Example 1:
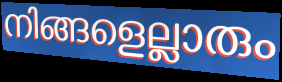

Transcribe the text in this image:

നിങ്ങളെല്ലാരും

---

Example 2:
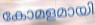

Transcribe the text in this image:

കോമളമായി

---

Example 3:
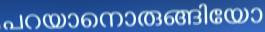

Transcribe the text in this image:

പറയാനൊരുങ്ങിയോ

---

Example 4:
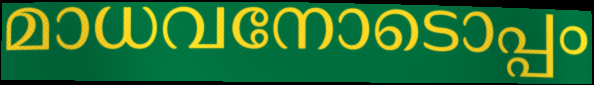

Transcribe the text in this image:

മാധവനോടൊപ്പം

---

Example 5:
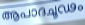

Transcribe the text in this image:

ആപാദചൂഢം